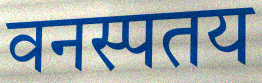
वनस्पतय